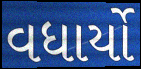
વધાર્યો